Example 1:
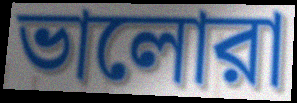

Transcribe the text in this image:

ভালোরা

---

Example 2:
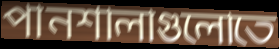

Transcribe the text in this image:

পানশালাগুলোতে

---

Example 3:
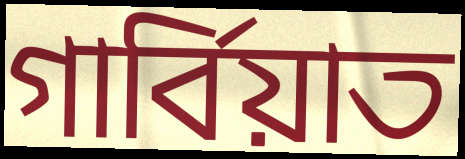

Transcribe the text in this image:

গার্বিয়াত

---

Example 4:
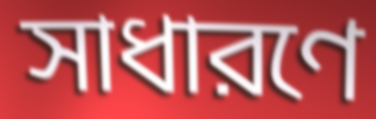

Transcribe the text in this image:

সাধারণে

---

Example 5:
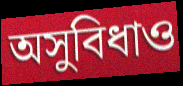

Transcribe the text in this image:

অসুবিধাও